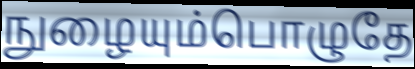
நுழையும்பொழுதே